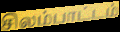
சிலம்பாட்டம்